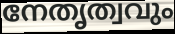
നേതൃത്വവും